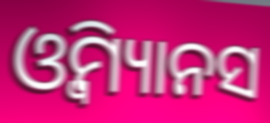
ଓ୍ବିମ୍ୟାନସ